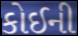
કોઈની